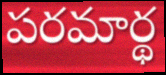
పరమార్థ